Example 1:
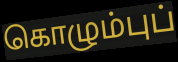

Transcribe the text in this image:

கொழும்புப்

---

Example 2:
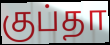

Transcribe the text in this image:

குப்தா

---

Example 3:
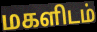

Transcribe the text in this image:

மகளிடம்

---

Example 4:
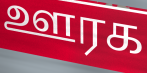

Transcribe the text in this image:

ஊரக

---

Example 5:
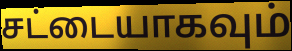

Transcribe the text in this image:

சட்டையாகவும்